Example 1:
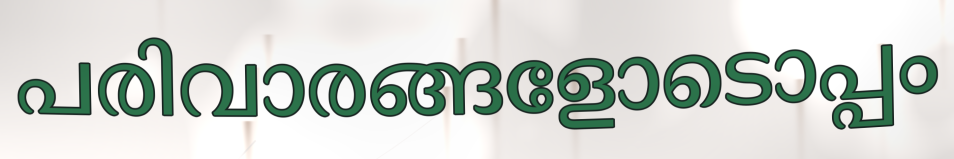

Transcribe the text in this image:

പരിവാരങ്ങളോടൊപ്പം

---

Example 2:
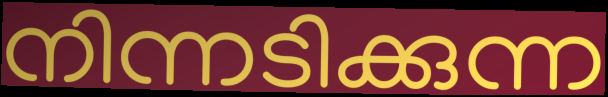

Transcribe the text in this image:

നിന്നടിക്കുന്ന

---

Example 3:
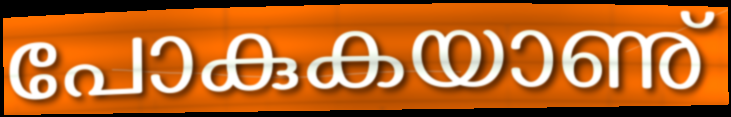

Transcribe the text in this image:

പോകുകയാണു്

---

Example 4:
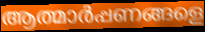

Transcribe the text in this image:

ആത്മാർപ്പണങ്ങളെ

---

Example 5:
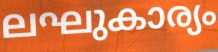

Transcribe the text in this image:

ലഘുകാര്യം